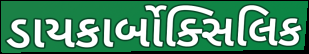
ડાયકાર્બોક્સિલિક